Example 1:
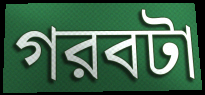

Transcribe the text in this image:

গরবটা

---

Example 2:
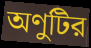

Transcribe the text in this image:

অণুটির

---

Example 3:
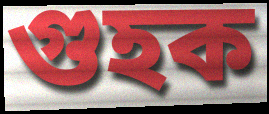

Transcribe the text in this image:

গুহক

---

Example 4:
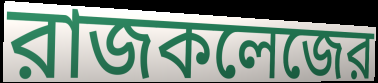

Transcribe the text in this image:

রাজকলেজের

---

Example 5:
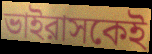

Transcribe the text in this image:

ভাইরাসকেই